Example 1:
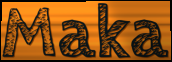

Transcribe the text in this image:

Maka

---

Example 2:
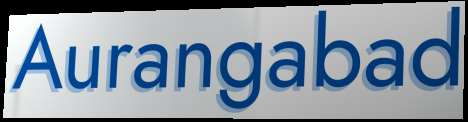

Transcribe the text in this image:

Aurangabad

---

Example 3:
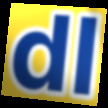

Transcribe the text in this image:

dl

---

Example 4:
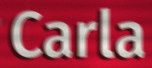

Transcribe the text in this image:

Carla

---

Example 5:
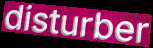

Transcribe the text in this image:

disturber